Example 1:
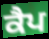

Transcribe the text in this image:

ਕੈਪ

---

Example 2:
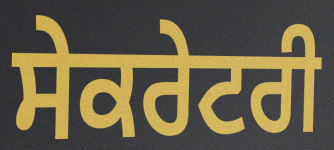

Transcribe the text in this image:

ਸੇਕਰੇਟਰੀ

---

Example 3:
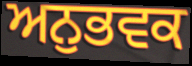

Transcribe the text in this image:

ਅਨੁਭਵਕ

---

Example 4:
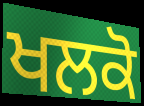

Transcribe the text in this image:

ਖਲਕੋ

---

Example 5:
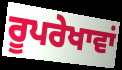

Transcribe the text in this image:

ਰੂਪਰੇਖਾਵਾਂ